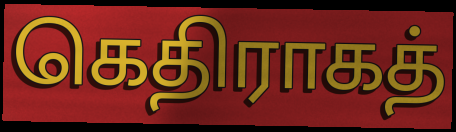
கெதிராகத்